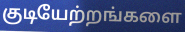
குடியேற்றங்களை